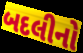
બદલીનો